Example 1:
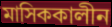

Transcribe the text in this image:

মাসিককালীন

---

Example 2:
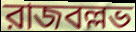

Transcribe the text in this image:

রাজবল্লভ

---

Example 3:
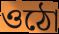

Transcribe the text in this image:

ওঠো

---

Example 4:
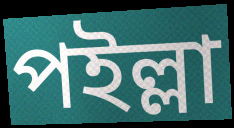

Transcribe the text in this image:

পইল্লা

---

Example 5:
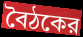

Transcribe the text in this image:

বৈঠকের